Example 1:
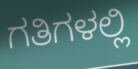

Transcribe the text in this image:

ಗತಿಗಳಲ್ಲಿ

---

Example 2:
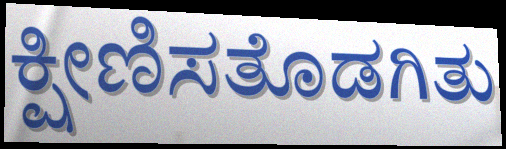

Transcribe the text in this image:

ಕ್ಷೀಣಿಸತೊಡಗಿತು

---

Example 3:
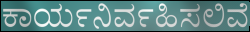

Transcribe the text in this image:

ಕಾರ್ಯನಿರ್ವಹಿಸಲಿವೆ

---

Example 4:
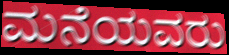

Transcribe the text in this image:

ಮನೆಯವರು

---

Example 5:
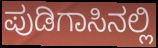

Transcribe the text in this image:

ಪುಡಿಗಾಸಿನಲ್ಲಿ